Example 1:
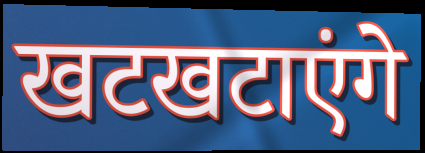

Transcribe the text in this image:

खटखटाएंगे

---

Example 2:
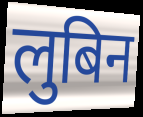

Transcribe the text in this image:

लुबिन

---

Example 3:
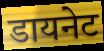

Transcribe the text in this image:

डायनेट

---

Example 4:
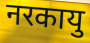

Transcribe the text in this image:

नरकायु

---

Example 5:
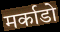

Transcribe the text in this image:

मर्काडो